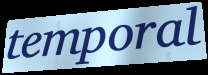
temporal